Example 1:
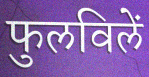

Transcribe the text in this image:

फुलविलें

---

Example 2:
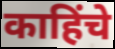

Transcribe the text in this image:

काहिंचे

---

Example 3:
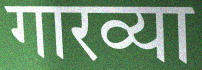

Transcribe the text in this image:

गारव्या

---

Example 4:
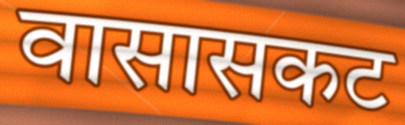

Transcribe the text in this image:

वासासकट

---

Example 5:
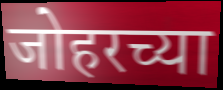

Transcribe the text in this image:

जोहरच्या